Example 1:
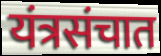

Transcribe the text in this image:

यंत्रसंचात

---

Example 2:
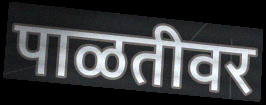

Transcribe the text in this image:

पाळतीवर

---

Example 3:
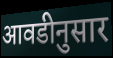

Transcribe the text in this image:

आवडीनुसार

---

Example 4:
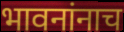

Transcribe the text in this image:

भावनांनाच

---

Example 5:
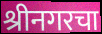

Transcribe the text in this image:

श्रीनगरचा